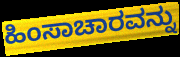
ಹಿಂಸಾಚಾರವನ್ನು